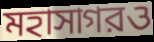
মহাসাগরও